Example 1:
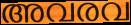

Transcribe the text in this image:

അവരവ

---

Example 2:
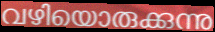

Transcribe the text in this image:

വഴിയൊരുക്കുന്നു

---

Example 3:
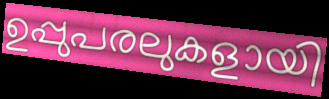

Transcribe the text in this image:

ഉപ്പുപരലുകളായി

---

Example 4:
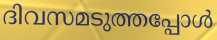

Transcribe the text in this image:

ദിവസമടുത്തപ്പോൾ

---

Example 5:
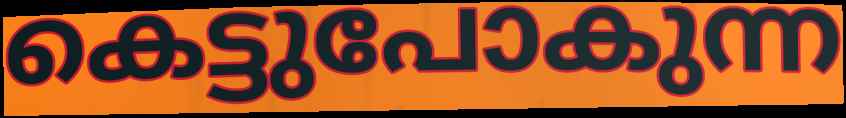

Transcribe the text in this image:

കെട്ടുപോകുന്ന